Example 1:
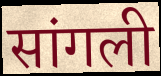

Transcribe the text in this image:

सांगली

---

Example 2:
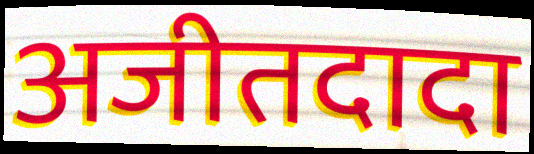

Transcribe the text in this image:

अजीतदादा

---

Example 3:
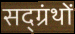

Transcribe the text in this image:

सद्ग्रंथों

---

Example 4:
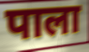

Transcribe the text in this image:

पाला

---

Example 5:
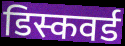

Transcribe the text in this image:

डिस्कवर्ड